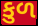
કુળ